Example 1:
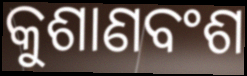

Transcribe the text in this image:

କୁଶାଣବଂଶ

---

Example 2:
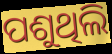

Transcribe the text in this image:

ପଶୁଥିଲି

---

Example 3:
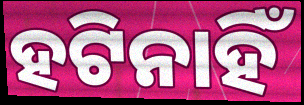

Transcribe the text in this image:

ହଟିନାହିଁ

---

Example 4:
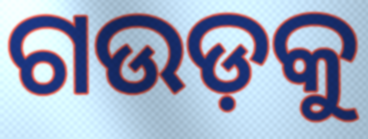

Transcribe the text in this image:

ଗଉଡ଼କୁ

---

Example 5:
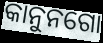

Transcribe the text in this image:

କାନୁନଗୋ